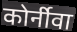
कोर्नीवा